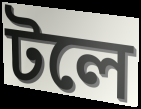
টলে